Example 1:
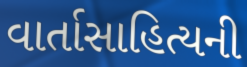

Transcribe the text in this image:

વાર્તાસાહિત્યની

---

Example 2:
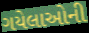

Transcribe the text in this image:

ગયેલાઓની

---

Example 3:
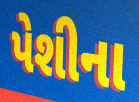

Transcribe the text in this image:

પેશીના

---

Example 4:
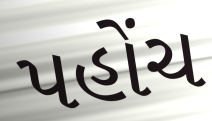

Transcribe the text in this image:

પહોંચ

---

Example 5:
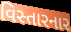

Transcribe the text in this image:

વિસ્તારનાર